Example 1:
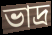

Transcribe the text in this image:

ভাদ্র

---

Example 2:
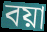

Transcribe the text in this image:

বয়া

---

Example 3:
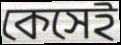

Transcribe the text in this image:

কেসেই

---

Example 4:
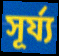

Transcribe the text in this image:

সূর্য্য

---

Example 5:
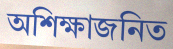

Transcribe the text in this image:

অশিক্ষাজনিত